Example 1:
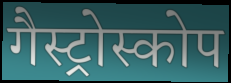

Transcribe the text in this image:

गैस्ट्रोस्कोप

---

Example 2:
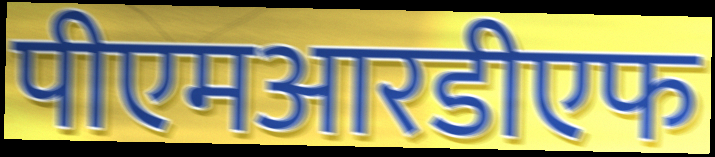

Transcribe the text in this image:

पीएमआरडीएफ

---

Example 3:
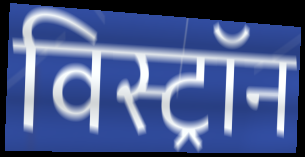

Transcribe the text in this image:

विस्ट्रॉन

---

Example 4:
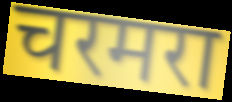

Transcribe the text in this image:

चरमरा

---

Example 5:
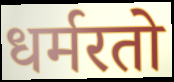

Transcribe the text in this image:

धर्मरतो